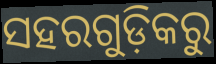
ସହରଗୁଡ଼ିକରୁ